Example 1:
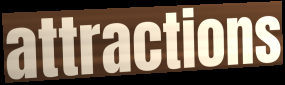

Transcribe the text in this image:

attractions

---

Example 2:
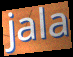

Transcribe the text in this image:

jala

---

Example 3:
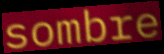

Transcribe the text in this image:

sombre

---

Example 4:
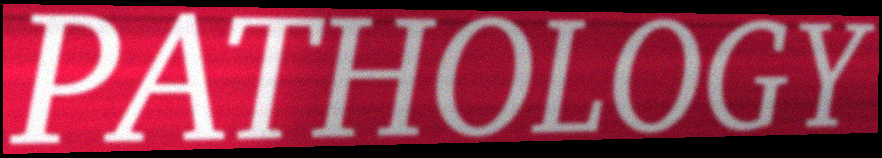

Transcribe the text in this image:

PATHOLOGY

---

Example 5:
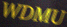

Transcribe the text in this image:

WDMU